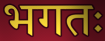
भगतः